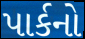
પાર્કનો